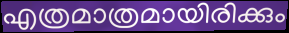
എത്രമാത്രമായിരിക്കും